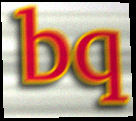
bq